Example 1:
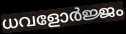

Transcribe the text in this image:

ധവളോർജ്ജം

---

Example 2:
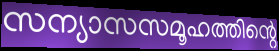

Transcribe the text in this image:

സന്യാസസമൂഹത്തിന്റെ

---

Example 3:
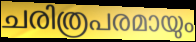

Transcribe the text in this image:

ചരിത്രപരമായും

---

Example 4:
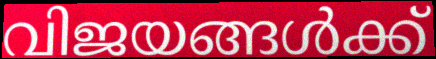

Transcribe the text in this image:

വിജയങ്ങൾക്ക്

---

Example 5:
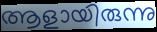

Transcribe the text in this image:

ആളായിരുന്നു